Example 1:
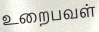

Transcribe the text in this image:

உறைபவள்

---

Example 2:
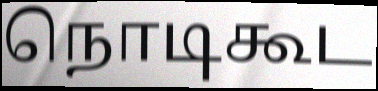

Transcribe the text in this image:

நொடிகூட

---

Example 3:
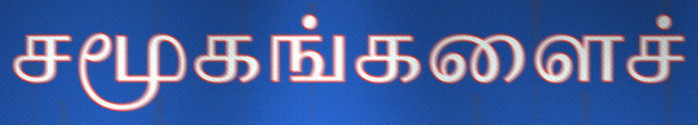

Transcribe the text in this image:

சமூகங்களைச்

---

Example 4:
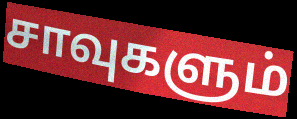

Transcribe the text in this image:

சாவுகளும்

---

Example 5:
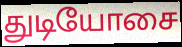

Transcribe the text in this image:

துடியோசை